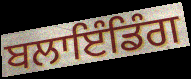
ਬਲਾਇੰਡਿੰਗ